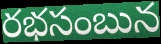
రభసంబున